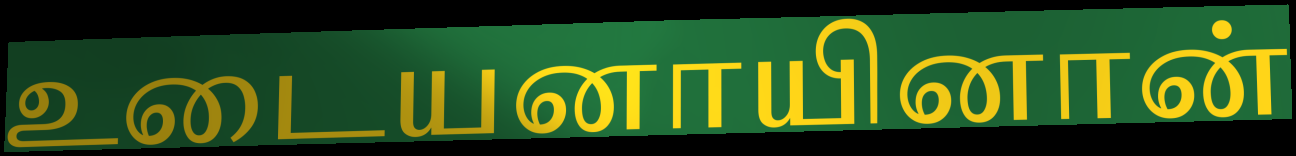
உடையனாயினான்